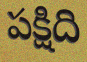
పక్షిది